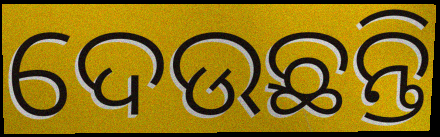
ଦେଉଛନ୍ତି